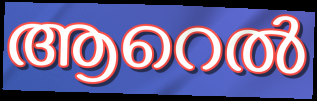
ആറെൽ